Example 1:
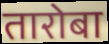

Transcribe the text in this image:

तारोबा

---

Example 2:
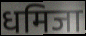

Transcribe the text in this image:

धमिजा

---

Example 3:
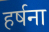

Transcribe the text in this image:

हर्षना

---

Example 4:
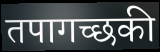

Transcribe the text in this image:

तपागच्छकी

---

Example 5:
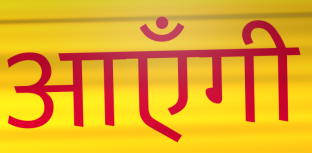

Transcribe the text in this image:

आएँगी